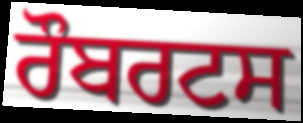
ਰੌਬਰਟਸ